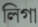
লিগা